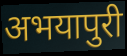
अभयापुरी